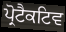
ਪ੍ਰੋਟੈਕਟਿਵ